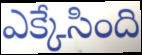
ఎక్కేసింది